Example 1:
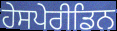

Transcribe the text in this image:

ਹੇਸਪੇਰੀਡਿਨ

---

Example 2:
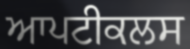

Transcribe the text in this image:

ਆਪਟੀਕਲਸ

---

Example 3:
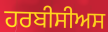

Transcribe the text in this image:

ਹਰਬੀਸੀਅਸ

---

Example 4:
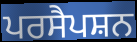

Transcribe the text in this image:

ਪਰਸੈਪਸ਼ਨ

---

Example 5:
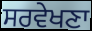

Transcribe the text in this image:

ਸਰਵੇਖਣਾ